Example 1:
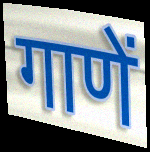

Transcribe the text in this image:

गाणें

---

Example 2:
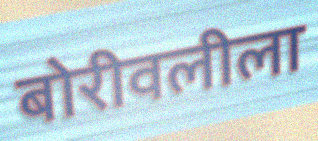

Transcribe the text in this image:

बोरीवलीला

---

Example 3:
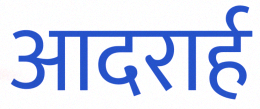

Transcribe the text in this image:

आदरार्ह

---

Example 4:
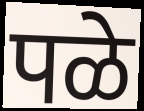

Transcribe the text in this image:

पळे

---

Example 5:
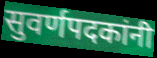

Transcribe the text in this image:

सुवर्णपदकांनी